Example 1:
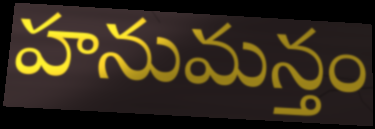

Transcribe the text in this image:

హనుమన్తం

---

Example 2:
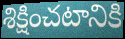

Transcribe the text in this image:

శిక్షించటానికి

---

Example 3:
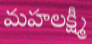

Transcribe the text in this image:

మహలక్ష్మీ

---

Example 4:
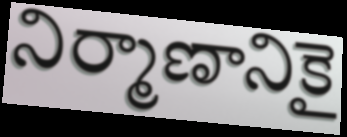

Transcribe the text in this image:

నిర్మాణానికై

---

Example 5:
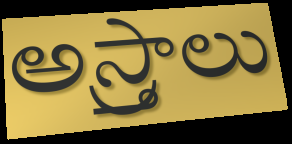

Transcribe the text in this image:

అస్ర్తాలు